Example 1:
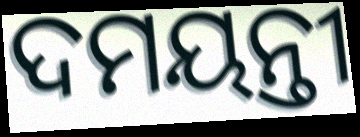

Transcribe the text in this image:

ଦମୟନ୍ତୀ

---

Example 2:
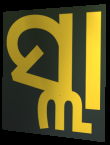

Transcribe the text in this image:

ସ୍ଲା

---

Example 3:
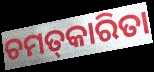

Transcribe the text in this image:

ଚମତ୍‌କାରିତା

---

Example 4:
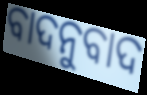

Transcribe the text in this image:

ବାଦନୁବାଦ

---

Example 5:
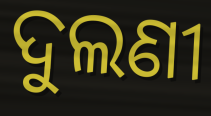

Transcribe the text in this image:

ଦୁଲଣୀ